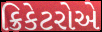
ક્રિકેટરોએ